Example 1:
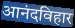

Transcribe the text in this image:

आनंदविहार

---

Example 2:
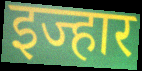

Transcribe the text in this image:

इज्हार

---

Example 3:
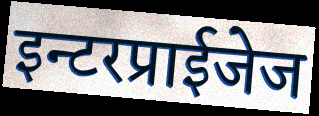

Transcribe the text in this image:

इन्टरप्राईजेज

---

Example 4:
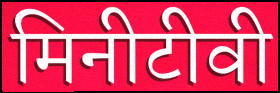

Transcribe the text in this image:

मिनीटीवी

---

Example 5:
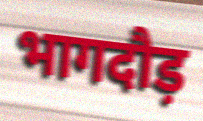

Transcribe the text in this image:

भागदौड़